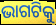
ଭାଗଟିକୁ